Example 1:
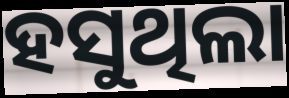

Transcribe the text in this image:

ହସୁଥିଲା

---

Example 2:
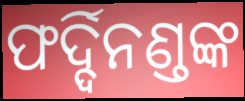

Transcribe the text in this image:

ଫର୍ଦ୍ଦିନଣ୍ଡଙ୍କ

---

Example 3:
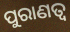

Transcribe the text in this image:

ପୁରାଣତ୍ୱ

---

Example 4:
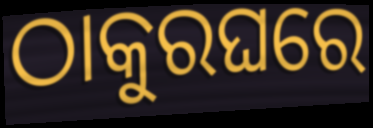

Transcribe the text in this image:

ଠାକୁରଘରେ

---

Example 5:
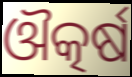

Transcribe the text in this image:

ଔତ୍କର୍ଷ